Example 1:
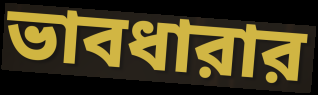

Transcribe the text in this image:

ভাবধারার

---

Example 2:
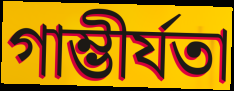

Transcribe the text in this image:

গাম্ভীর্যতা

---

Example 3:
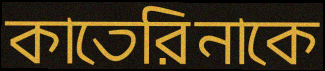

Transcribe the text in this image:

কাতেরিনাকে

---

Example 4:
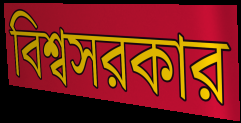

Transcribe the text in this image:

বিশ্বসরকার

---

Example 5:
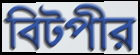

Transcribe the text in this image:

বিটপীর